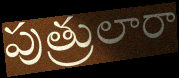
పుత్రులారా